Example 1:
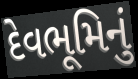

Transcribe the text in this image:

દેવભૂમિનું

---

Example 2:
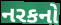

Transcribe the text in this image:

નરકનો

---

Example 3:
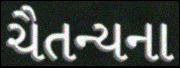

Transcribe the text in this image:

ચૈતન્યના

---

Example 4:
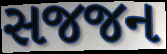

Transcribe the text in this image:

સજજન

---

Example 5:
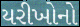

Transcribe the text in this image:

યરીખોનો